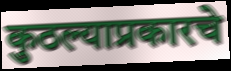
कुठल्याप्रकारचे